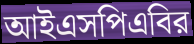
আইএসপিএবির